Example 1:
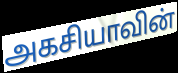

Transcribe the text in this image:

அகசியாவின்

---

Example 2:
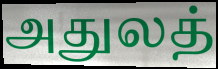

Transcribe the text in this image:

அதுலத்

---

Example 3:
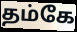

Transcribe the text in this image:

தம்கே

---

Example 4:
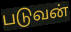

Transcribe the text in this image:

படுவன்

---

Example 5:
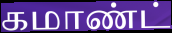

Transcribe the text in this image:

கமாண்ட்